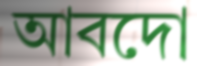
আবদো